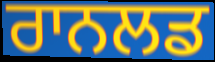
ਰਾਨਲਡ